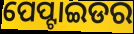
ପେପ୍ଟାଇଡର